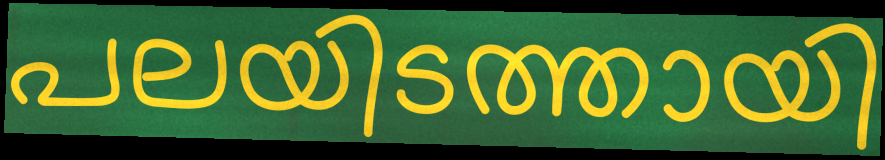
പലയിടത്തായി